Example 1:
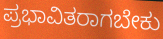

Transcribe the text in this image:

ಪ್ರಭಾವಿತರಾಗಬೇಕು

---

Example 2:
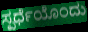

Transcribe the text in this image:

ಸ್ಪರ್ಧೆಯೊಂದು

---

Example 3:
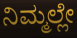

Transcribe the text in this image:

ನಿಮ್ಮಲ್ಲೇ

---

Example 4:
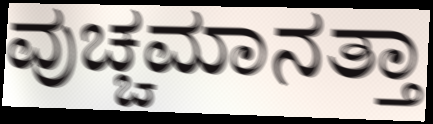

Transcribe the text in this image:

ವುಚ್ಚಮಾನತ್ತಾ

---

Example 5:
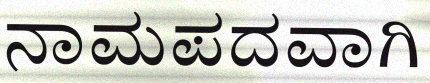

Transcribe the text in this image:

ನಾಮಪದವಾಗಿ